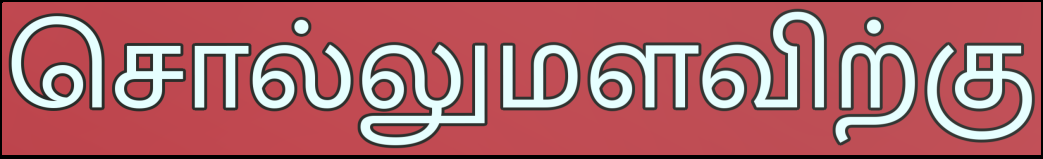
சொல்லுமளவிற்கு